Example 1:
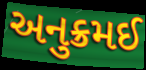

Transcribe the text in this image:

અનુક્રમઈ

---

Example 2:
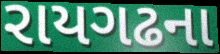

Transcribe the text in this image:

રાયગઢના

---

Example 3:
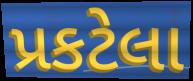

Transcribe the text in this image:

પ્રકટેલા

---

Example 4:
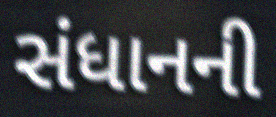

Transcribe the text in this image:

સંધાનની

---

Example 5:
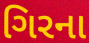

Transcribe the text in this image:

ગિરના